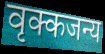
वृक्कजन्य